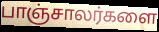
பாஞ்சாலர்களை